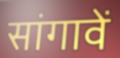
सांगावें